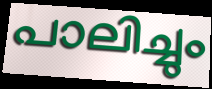
പാലിച്ചും